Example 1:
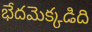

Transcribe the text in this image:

భేదమెక్కడిది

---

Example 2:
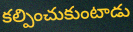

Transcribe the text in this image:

కల్పించుకుంటాడు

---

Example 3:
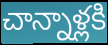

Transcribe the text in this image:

చాన్నాళ్లకి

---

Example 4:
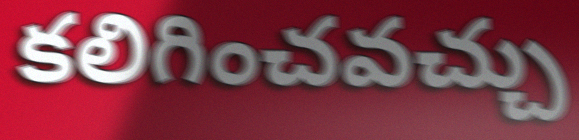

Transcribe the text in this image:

కలిగించవచ్చు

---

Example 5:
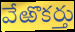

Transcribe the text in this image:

వేఱొకర్తు